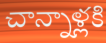
చాన్నాళ్లకి